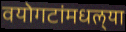
वयोगटांमधल्या